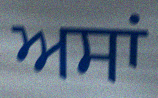
ਅਸਾਂ